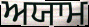
ਅਯਾਮ